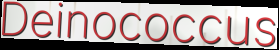
Deinococcus